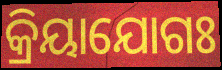
କ୍ରିୟାଯୋଗଃ